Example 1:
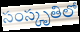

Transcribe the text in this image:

సంస్కృతిలో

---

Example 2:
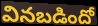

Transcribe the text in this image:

వినబడిందో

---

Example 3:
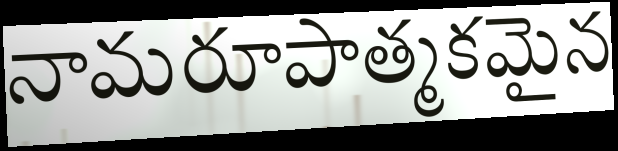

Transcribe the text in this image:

నామరూపాత్మకమైన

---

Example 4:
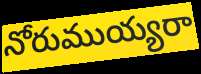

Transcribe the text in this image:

నోరుముయ్యరా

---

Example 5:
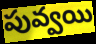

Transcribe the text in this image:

పువ్వయి